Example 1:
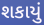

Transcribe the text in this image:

શકાયું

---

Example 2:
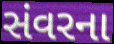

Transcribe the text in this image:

સંવરના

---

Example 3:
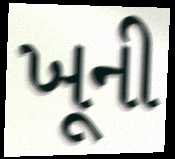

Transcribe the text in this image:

ખૂની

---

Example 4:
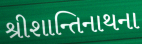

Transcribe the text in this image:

શ્રીશાન્તિનાથના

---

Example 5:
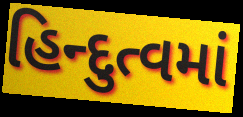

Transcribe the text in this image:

હિન્દુત્વમાં